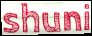
shuni